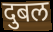
दुबल